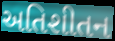
અતિશીતન